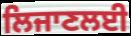
ਲਿਜਾਣਲਈ